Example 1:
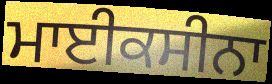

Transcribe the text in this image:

ਮਾਈਕਸੀਨਾ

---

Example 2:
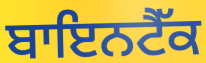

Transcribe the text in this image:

ਬਾਇਨਟੈੱਕ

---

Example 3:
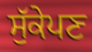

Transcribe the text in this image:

ਸੁੱਕੇਪਣ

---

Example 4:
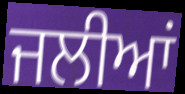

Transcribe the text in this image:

ਜਲੀਆਂ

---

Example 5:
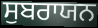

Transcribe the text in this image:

ਸੁਬਰਾਯਨ